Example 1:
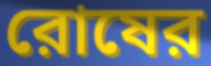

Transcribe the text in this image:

রোষের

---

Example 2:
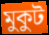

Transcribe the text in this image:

মুকুট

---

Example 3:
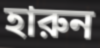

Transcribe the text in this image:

হারুন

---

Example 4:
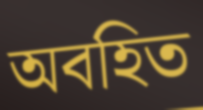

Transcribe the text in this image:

অবহিত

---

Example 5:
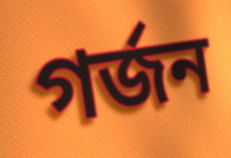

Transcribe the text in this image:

গর্জন